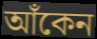
আঁকেন